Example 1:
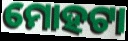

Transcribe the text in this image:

ମୋହଟା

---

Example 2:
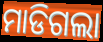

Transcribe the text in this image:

ମାଡିଗଲା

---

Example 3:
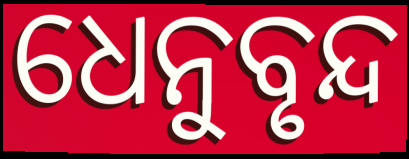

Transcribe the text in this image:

ଧେନୁବୃନ୍ଦ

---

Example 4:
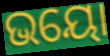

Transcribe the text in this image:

ଭୟୋ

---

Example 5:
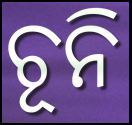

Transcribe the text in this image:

ଚୂନି